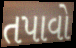
તપાવો